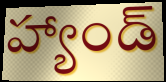
హ్యాండ్